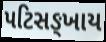
પટિસઙ્ખાય